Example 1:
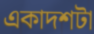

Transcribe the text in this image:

একাদশটা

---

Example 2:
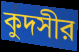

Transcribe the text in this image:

কুদসীর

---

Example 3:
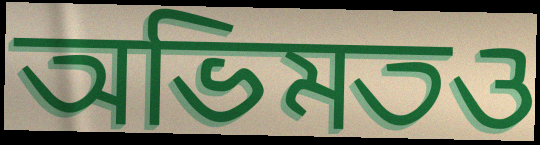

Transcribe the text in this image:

অভিমতও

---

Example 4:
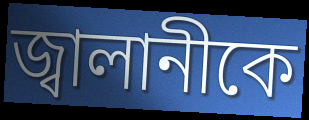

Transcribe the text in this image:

জ্বালানীকে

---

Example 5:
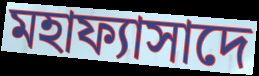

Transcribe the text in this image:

মহাফ্যাসাদে